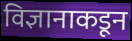
विज्ञानाकडून